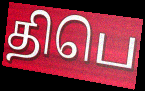
திபெ